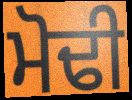
ਮੋਢੀ